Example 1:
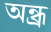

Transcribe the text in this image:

অন্ধ্ৰ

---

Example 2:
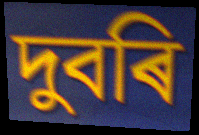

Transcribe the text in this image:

দুবৰি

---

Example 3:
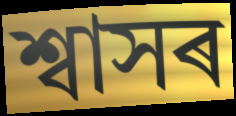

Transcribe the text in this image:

শ্বাসৰ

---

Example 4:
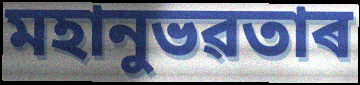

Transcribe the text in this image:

মহানুভৱতাৰ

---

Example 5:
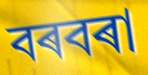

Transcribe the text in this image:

বৰবৰা